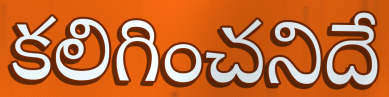
కలిగించనిదే